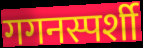
गगनस्पर्शी